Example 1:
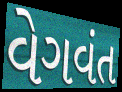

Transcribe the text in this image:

વેગવંત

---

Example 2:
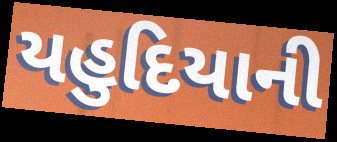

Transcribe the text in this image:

યહુદિયાની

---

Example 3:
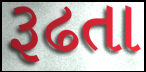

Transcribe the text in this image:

રૂઢતા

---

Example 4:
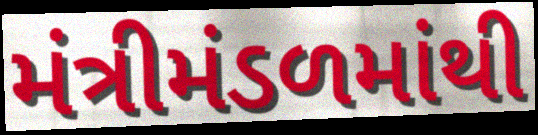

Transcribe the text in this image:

મંત્રીમંડળમાંથી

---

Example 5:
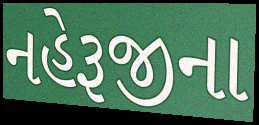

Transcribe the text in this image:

નહેરૂજીના